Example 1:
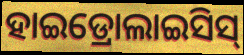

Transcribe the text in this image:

ହାଇଡ୍ରୋଲାଇସିସ୍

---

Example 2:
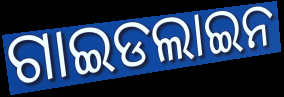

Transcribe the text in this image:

ଗାଇଡଲାଇନ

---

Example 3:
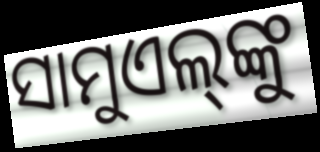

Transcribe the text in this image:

ସାମୁଏଲ୍‌ଙ୍କୁ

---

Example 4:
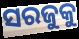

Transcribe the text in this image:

ସରଜୁକୁ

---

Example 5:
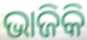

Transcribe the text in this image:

ଭାଜିକି